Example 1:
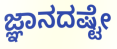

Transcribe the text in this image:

ಜ್ಞಾನದಷ್ಟೇ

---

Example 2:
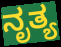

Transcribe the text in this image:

ನೃತ್ಯ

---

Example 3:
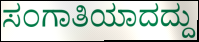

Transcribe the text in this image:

ಸಂಗಾತಿಯಾದದ್ದು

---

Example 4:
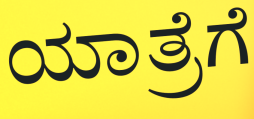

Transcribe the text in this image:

ಯಾತ್ರೆಗೆ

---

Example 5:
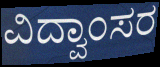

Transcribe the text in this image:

ವಿದ್ವಾಂಸರ